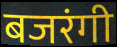
बजरंगी